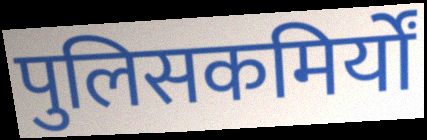
पुलिसकमिर्यों